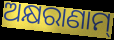
ଅକ୍ଷରାଣାମ୍